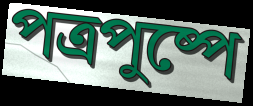
পত্রপুষ্পে